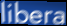
libera